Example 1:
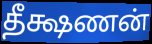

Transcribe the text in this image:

தீக்ஷணன்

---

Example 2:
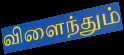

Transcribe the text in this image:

விளைந்தும்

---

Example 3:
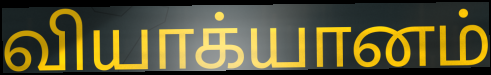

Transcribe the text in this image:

வியாக்யானம்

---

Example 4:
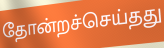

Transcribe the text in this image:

தோன்றச்செய்தது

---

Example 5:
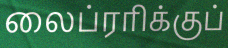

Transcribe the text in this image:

லைப்ரரிக்குப்